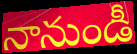
నానుండీ